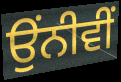
ਉੰਨੀਵੀਂ